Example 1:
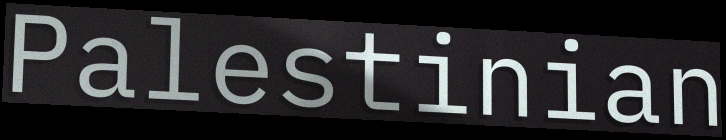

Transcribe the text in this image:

Palestinian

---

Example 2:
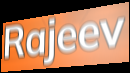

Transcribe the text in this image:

Rajeev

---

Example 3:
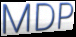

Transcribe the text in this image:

MDP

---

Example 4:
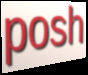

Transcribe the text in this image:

posh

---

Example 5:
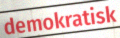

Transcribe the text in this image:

demokratisk